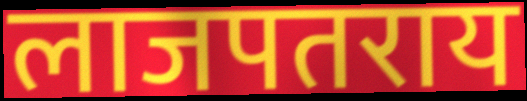
लाजपतराय